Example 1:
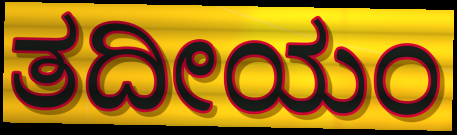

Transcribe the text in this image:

ತದೀಯಂ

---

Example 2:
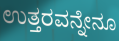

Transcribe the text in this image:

ಉತ್ತರವನ್ನೇನೂ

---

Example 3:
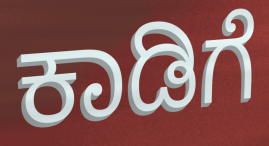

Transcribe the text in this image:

ಕಾಡಿಗೆ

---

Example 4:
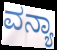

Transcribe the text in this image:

ವನ್ಯಾ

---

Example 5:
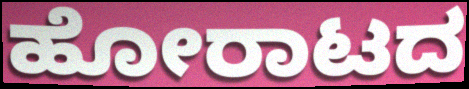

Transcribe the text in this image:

ಹೋರಾಟದ